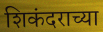
शिकंदराच्या